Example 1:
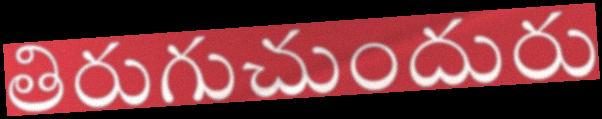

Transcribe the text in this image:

తిరుగుచుందురు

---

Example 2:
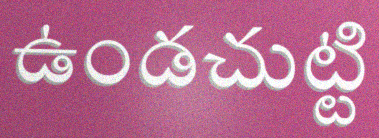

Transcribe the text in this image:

ఉండచుట్టి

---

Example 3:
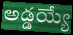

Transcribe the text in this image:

అడ్డయ్యే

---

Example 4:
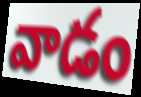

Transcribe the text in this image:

వాడం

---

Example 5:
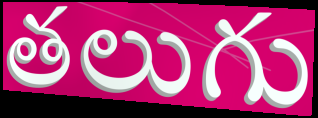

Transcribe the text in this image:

తలుగు